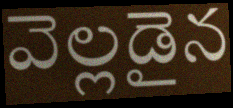
వెల్లడైన